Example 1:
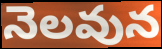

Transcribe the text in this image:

నెలవున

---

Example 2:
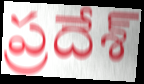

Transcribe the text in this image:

ప్రదేశ్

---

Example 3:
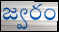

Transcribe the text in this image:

జ్వరం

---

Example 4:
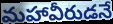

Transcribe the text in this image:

మహావీరుడనే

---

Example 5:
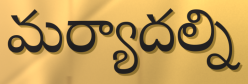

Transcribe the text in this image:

మర్యాదల్ని